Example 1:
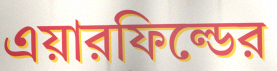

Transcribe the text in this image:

এয়ারফিল্ডের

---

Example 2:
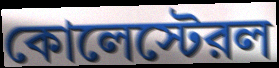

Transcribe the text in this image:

কোলেস্টেরল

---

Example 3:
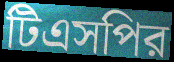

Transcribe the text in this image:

টিএসপির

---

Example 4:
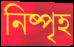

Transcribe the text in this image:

নিষ্পৃহ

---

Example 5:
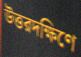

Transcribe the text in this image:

উত্তরদক্ষিণে